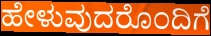
ಹೇಳುವುದರೊಂದಿಗೆ